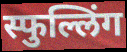
स्फुल्लिंग